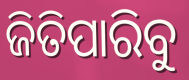
ଜିତିପାରିବୁ